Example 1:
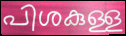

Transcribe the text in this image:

പിശകുള്ള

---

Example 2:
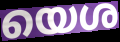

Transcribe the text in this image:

യെശ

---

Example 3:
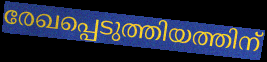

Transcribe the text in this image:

രേഖപ്പെടുത്തിയത്തിന്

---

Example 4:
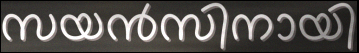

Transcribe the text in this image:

സയൻസിനായി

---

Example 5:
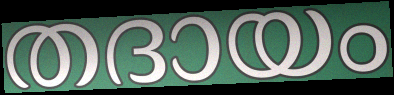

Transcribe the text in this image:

തദായം